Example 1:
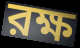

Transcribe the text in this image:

রক্ষ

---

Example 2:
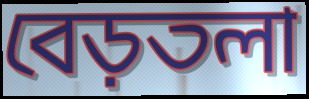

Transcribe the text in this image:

বেড়তলা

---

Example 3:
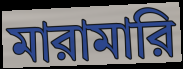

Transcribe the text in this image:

মারামারি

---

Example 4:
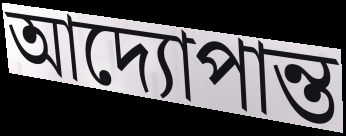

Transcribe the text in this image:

আদ্যোপান্ত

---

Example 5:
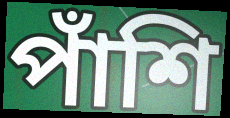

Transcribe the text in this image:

পাঁশি